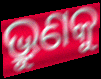
ଭ୍ରୁଣକୁ